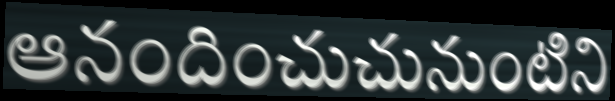
ఆనందించుచునుంటిని